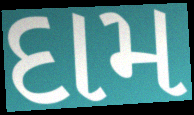
દામ